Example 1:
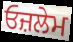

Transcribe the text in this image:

ਓਜ਼ਲੇਮ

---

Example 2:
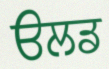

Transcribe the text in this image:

ੳਲਡ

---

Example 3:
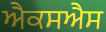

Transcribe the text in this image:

ਐਕਸਐਸ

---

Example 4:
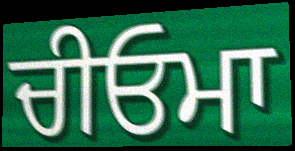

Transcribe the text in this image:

ਚੀਓਮਾ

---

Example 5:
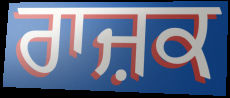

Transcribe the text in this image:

ਰਾਜ਼ਕ